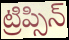
ట్రిప్సిన్